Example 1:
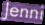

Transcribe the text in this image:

Jenni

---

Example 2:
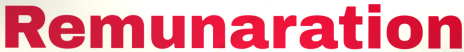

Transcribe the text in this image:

Remunaration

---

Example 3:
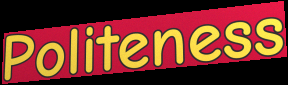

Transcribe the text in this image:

Politeness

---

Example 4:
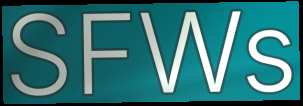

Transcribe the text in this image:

SFWs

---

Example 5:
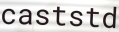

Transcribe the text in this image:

caststd